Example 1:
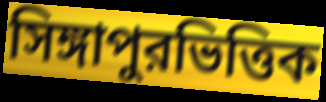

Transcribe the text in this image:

সিঙ্গাপুরভিত্তিক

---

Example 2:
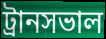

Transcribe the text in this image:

ট্রানসভাল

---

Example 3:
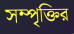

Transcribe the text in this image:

সম্পৃক্তির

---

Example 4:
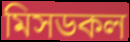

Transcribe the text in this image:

মিসডকল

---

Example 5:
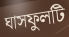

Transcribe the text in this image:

ঘাসফুলটি